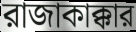
রাজাকাক্কার